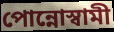
পোন্নোস্বামী